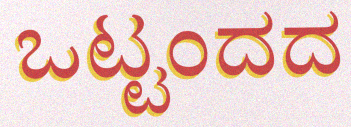
ಒಟ್ಟಂದದ